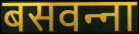
बसवन्ना